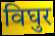
विघुर